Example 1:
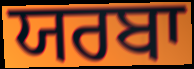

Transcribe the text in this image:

ਯਰਬਾ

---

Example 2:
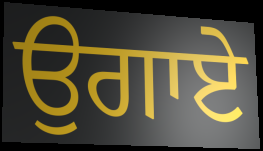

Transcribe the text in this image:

ਉਗਾਏ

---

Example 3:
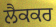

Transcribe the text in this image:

ਲੈਕਕਰ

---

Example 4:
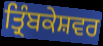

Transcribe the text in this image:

ਤ੍ਰਿੰਬਕੇਸ਼ਵਰ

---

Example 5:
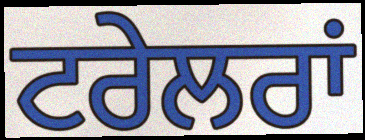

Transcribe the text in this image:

ਟਰੇਲਰਾਂ